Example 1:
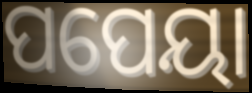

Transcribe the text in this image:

ପପେୟା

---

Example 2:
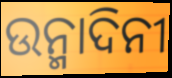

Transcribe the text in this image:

ଉନ୍ମାଦିନୀ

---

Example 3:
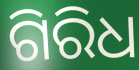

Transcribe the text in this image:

ଗିରିଧ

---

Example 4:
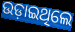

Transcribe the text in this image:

ଉଡ଼ାଇଥିଲେ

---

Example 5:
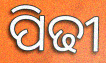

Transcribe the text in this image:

ପିଢୀ